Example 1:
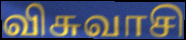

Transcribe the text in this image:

விசுவாசி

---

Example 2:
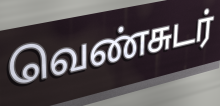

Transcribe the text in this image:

வெண்சுடர்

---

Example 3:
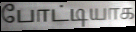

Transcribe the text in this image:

போட்டியாக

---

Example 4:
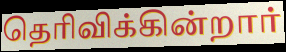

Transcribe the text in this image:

தெரிவிக்கின்றார்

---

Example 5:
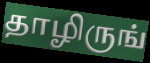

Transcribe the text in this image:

தாழிருங்